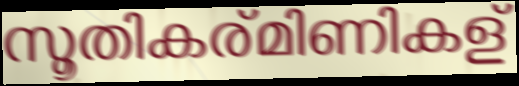
സൂതികര്മിണികള്